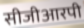
सीजीआरपी